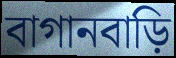
বাগানবাড়ি